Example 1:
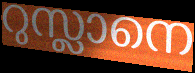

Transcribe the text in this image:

റുസ്ലാനെ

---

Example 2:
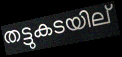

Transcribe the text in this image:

തട്ടുകടയില്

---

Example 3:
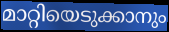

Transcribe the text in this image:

മാറ്റിയെടുക്കാനും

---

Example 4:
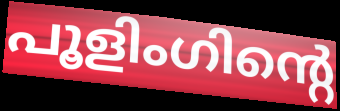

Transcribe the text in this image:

പൂളിംഗിന്റെ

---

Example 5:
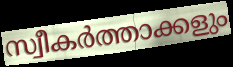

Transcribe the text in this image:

സ്വീകർത്താക്കളും